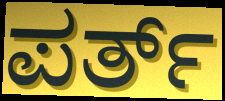
ಪರ್ತ್